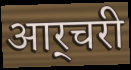
आर्चरी